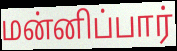
மன்னிப்பார்